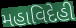
મહાવિદેહી